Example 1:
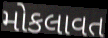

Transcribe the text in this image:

મોકલાવત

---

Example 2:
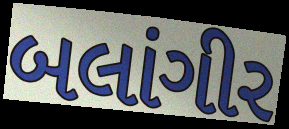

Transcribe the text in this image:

બલાંગીર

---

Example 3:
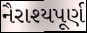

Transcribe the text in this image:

નૈરાશ્યપૂર્ણ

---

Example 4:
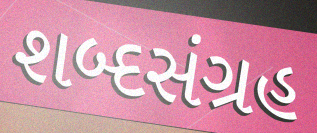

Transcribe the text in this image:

શબ્દસંગ્રહ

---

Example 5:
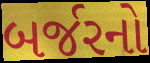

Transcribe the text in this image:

બર્જરનો